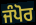
ਜੰਪੋਰ